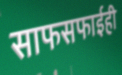
साफसफाईही